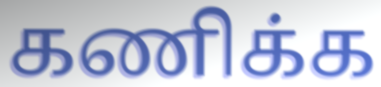
கணிக்க